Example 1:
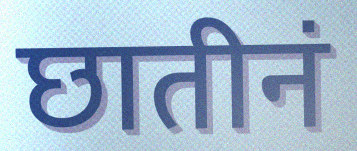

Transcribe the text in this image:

छातीनं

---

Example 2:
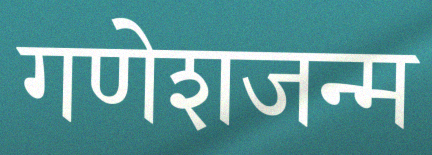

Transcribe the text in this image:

गणेशजन्म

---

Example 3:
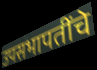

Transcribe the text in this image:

उपसभापतींचे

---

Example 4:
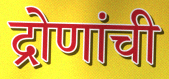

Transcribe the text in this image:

द्रोणांची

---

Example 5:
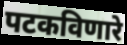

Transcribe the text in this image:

पटकविणारे